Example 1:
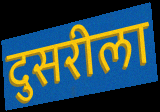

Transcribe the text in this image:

दुसरीला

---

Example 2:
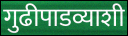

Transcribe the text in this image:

गुढीपाडव्याशी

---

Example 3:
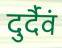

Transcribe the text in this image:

दुर्दैवं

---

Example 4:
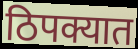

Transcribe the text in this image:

ठिपक्यात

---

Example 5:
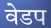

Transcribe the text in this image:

वेडप